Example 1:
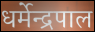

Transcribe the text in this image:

धर्मेन्द्रपाल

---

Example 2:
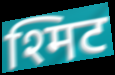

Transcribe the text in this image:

श्मिट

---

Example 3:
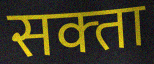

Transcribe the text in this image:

सक्‍ता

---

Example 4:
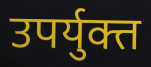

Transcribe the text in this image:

उपर्युक्त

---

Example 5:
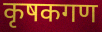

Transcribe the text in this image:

कृषकगण